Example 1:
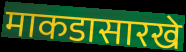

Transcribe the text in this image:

माकडासारखे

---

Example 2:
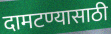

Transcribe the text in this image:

दामटण्यासाठी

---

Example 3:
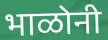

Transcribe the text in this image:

भाळोनी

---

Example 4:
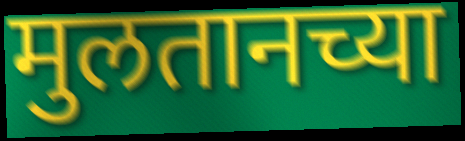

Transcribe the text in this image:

मुलतानच्या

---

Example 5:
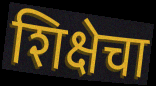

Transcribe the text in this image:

शिक्षेचा